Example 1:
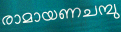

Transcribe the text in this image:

രാമായണചമ്പു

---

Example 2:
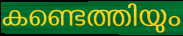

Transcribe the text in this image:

കണ്ടെത്തിയും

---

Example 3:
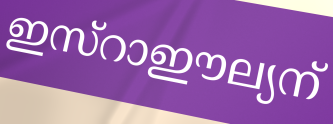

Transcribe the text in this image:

ഇസ്റാഈല്യന്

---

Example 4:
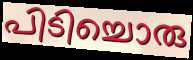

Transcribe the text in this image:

പിടിച്ചൊരു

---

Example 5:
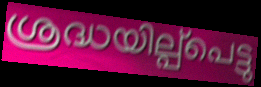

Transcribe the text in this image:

ശ്രദ്ധയില്പ്പെട്ടു